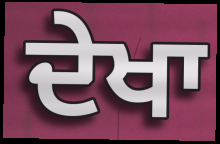
ਦੇਖਾ